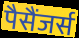
पैसैंजर्स